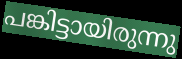
പങ്കിട്ടായിരുന്നു